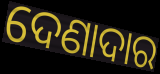
ଦେଣାଦାର